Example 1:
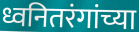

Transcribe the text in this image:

ध्वनितरंगांच्या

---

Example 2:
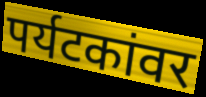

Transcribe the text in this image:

पर्यटकांवर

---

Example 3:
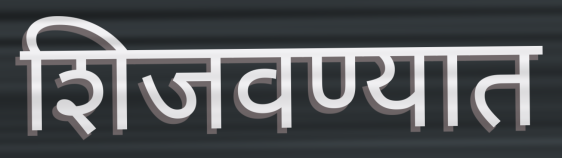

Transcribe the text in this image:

शिजवण्यात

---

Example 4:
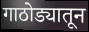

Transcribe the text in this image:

गाठोड्यातून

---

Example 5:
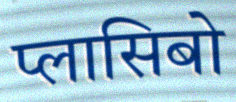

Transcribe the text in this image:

प्लासिबो